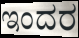
ಇಂದರ